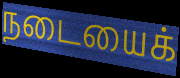
நடையைக்